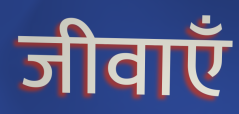
जीवाएँ